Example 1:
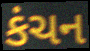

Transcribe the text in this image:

કંચન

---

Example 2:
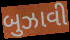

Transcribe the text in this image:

બુઝાવી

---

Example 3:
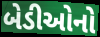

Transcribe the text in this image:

બેડીઓનો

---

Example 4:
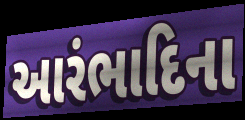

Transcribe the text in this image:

આરંભાદિના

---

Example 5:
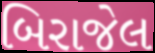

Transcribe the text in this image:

બિરાજેલ